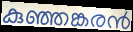
കുഞ്ഞങ്കരൻ